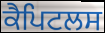
ਕੈਪਿਟਲਸ